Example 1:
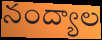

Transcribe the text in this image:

నంద్యాల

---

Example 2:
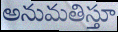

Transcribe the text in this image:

అనుమతిస్తూ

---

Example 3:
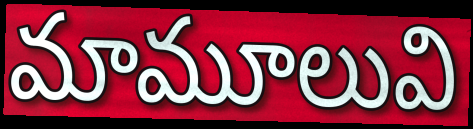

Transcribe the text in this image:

మామూలువి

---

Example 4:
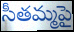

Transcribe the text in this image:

సీతమ్మపై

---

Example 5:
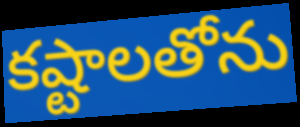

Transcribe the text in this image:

కష్టాలతోను